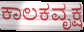
ಕಾಲಕವೃಕ್ಷ